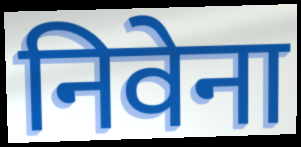
निवेना